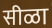
सीळा